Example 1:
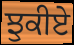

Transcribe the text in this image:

ਝੁਕੀਏ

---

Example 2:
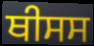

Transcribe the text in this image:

ਥੀਸਸ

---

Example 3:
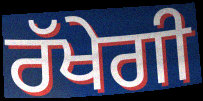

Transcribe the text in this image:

ਰੱਖੇਗੀ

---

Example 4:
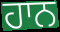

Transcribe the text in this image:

ਹਾਨ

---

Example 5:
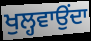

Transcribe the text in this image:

ਖੁਲ੍ਹਵਾਉਂਦਾ